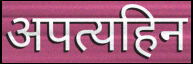
अपत्यहिन